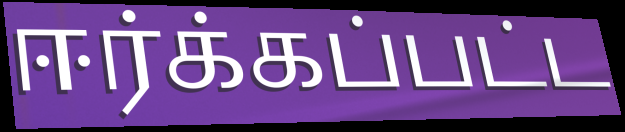
ஈர்க்கப்பட்ட